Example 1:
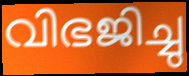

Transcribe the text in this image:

വിഭജിച്ചു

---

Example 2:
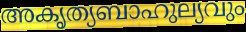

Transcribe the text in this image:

അകൃത്യബാഹുല്യവും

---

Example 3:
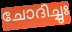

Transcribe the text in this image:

ചോദിച്ചുഃ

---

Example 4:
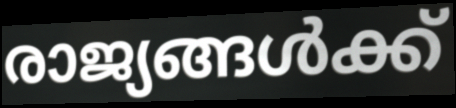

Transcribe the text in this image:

രാജ്യങ്ങൾക്ക്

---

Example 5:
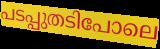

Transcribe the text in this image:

പടപ്പുതടിപോലെ